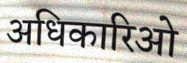
अधिकारिओ